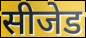
सीजेड